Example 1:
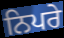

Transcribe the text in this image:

ਨਿਪਰੇ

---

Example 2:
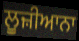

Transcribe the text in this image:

ਲੂਜ਼ੀਆਨਾ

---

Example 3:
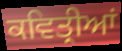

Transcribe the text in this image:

ਕਵਿਤ੍ਰੀਆਂ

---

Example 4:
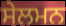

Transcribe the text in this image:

ਸੇਲਮਨ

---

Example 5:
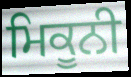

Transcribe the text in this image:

ਮਿਕੂਨੀ